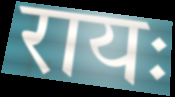
रायः